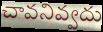
చావనివ్వదు